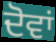
ਦੋਵਾਂ